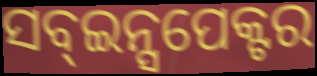
ସବ୍ଇନ୍ସପେକ୍ଟର